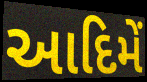
આદિમેં